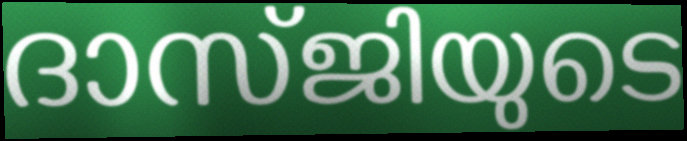
ദാസ്ജിയുടെ